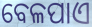
ବେଳପାଏ